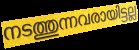
നടത്തുന്നവരായിട്ടല്ല